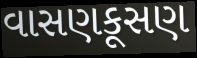
વાસણકૂસણ